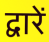
द्वारें